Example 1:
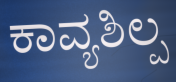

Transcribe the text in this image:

ಕಾವ್ಯಶಿಲ್ಪ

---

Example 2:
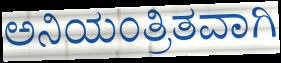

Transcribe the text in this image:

ಅನಿಯಂತ್ರಿತವಾಗಿ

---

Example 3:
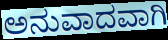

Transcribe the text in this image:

ಅನುವಾದವಾಗಿ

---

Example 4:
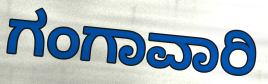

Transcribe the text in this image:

ಗಂಗಾವಾರಿ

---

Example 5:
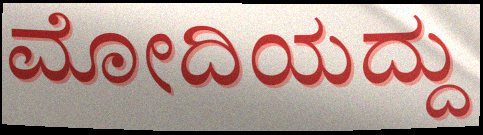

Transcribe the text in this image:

ಮೋದಿಯದ್ದು